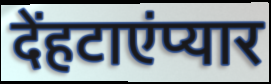
देंहटाएंप्यार